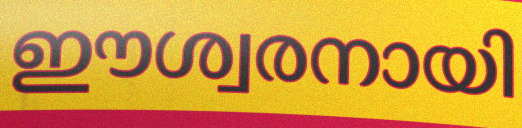
ഈശ്വരനായി